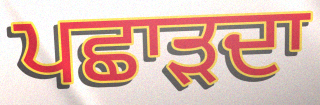
ਪਛਾੜਦਾ